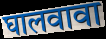
घालवावा